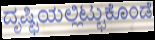
ದೃಷ್ಟಿಯಲ್ಲಿಟ್ಟುಕೊಂಡೆ